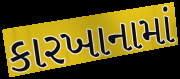
કારખાનામાં